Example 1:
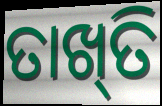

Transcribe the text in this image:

ତାଖ୍‍ତି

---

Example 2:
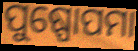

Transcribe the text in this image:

ପୁଷ୍ପୋପମା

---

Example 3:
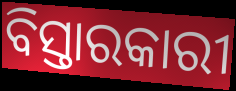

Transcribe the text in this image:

ବିସ୍ତାରକାରୀ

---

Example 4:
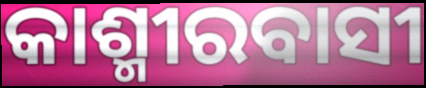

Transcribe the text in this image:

କାଶ୍ମୀରବାସୀ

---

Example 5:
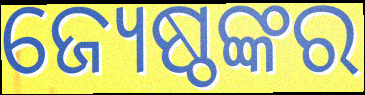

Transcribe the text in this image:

ଜ୍ୟେଷ୍ଠଙ୍କର